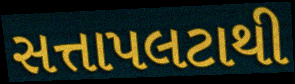
સત્તાપલટાથી